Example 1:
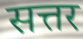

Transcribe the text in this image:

सत्तर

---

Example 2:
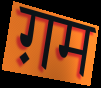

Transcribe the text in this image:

ग़म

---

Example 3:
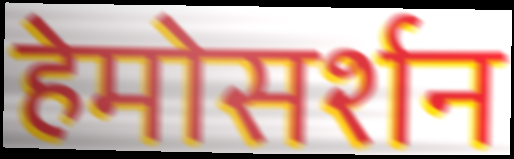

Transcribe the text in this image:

हेमोसर्शन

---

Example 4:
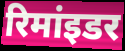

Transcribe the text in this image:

रिमांइडर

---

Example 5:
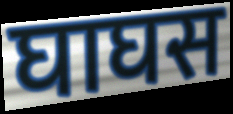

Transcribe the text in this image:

घाघस